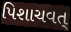
પિશાચવત્